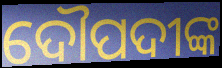
ଦୌପଦୀଙ୍କ